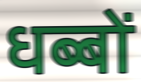
धब्बों